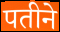
पतीने